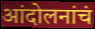
आंदोलनांचं